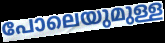
പോലെയുമുള്ള